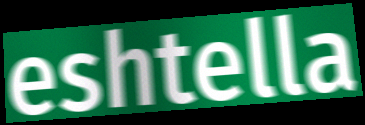
eshtella